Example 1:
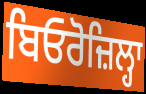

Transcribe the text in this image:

ਬਿਓਰੋਜ਼ਿਲ੍ਹਾ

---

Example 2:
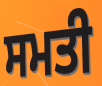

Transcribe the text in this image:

ਸਮਤੀ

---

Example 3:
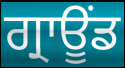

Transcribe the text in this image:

ਗ੍ਰਾਊਂਡ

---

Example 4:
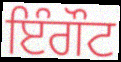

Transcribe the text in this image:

ਇੰਗੌਟ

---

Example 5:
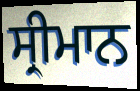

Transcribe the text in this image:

ਸ੍ਰੀਮਾਨ